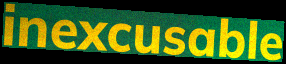
inexcusable